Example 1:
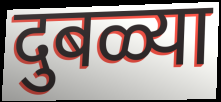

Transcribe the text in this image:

दुबळ्या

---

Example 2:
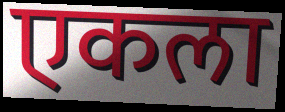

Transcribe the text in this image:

एकला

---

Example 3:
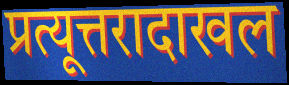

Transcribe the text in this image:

प्रत्यूत्तरादाखल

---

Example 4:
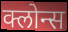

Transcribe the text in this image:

क्लोन्स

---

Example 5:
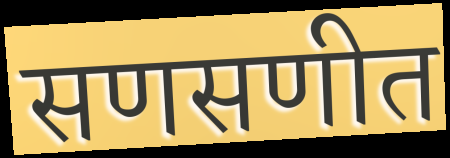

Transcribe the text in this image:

सणसणीत